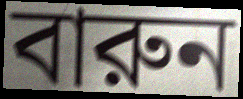
বারুন